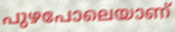
പുഴപോലെയാണ്